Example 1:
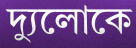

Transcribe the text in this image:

দ্যুলোকে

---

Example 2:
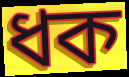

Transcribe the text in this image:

ধক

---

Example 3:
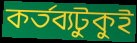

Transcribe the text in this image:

কর্তব্যটুকুই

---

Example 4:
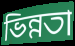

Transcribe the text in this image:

ভিন্নতা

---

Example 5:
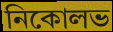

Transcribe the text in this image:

নিকোলভ